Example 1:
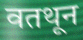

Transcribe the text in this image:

वतथून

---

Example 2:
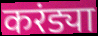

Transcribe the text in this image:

करंड्या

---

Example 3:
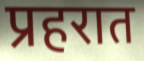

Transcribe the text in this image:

प्रहरात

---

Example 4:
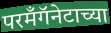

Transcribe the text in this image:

परमँगॅनेटाच्या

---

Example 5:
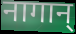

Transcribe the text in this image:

नागान्